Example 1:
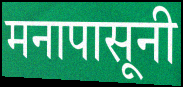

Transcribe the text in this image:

मनापासूनी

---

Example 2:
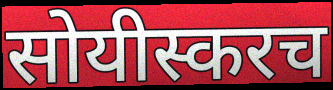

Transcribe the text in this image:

सोयीस्करच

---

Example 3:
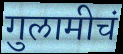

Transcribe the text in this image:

गुलामीचं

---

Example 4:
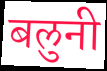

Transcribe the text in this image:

बलुनी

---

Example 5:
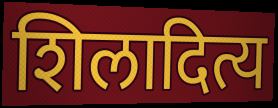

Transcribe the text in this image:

शिलादित्य